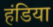
हंडिया